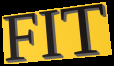
FIT